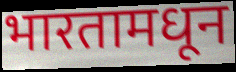
भारतामधून